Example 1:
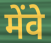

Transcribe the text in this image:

मेंवे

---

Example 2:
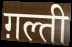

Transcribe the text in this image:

ग़ल्ती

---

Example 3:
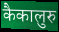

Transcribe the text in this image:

कैकालुरु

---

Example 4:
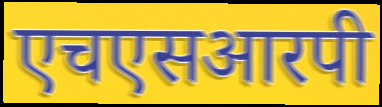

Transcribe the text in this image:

एचएसआरपी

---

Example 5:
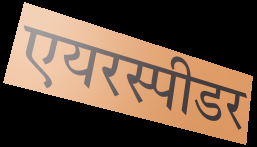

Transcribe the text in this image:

एयरस्पीडर